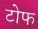
टोफ